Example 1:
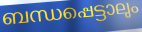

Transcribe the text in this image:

ബന്ധപ്പെട്ടാലും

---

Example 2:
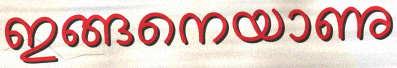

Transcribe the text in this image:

ഇങ്ങനെയാണു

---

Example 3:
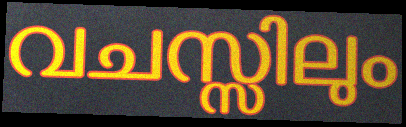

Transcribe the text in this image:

വചസ്സിലും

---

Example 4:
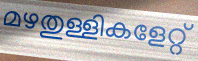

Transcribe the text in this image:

മഴതുള്ളികളേറ്റ്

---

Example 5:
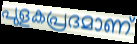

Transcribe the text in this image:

പുളകപ്രദമാണ്